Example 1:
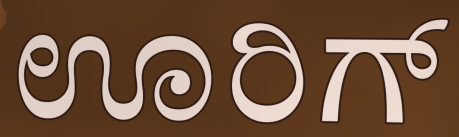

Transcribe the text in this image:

ಊರಿಗ್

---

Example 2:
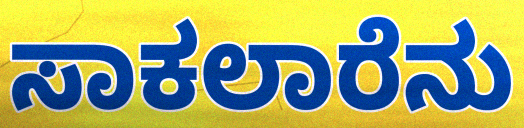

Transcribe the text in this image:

ಸಾಕಲಾರೆನು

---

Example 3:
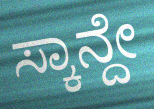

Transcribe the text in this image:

ಸ್ಕಾನ್ದೇ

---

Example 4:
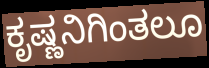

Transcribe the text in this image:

ಕೃಷ್ಣನಿಗಿಂತಲೂ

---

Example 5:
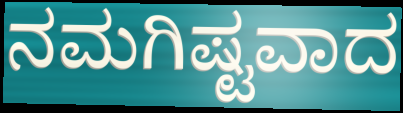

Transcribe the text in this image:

ನಮಗಿಷ್ಟವಾದ